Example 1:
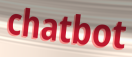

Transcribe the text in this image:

chatbot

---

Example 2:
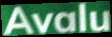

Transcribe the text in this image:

Avalu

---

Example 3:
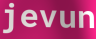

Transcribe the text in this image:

jevun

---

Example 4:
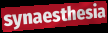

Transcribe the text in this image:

synaesthesia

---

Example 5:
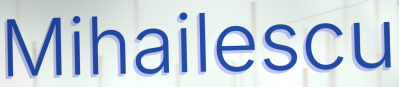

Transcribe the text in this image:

Mihailescu